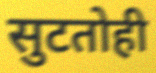
सुटतोही